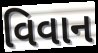
વિવાન